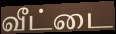
வீட்டை